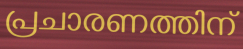
പ്രചാരണത്തിന്